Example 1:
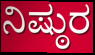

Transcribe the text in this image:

ನಿಷ್ಠುರ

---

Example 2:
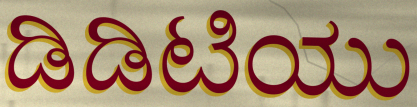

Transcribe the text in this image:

ಡಿಡಿಟಿಯು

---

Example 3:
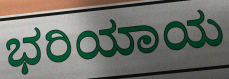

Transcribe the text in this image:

ಭರಿಯಾಯ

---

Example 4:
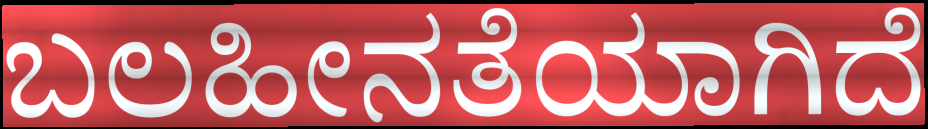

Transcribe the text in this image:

ಬಲಹೀನತೆಯಾಗಿದೆ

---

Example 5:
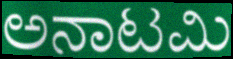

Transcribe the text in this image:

ಅನಾಟಮಿ